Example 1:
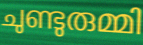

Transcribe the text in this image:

ചുണ്ടുരുമ്മി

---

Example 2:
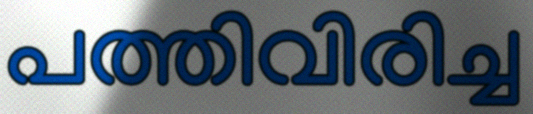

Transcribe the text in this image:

പത്തിവിരിച്ച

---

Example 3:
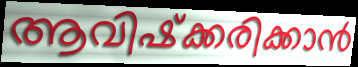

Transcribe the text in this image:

ആവിഷ്‌ക്കരിക്കാൻ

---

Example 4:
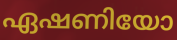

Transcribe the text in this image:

ഏഷണിയോ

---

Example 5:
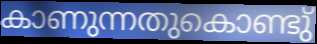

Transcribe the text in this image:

കാണുന്നതുകൊണ്ടു്